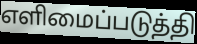
எளிமைப்படுத்தி